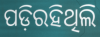
ପଡ଼ିରହିଥିଲି